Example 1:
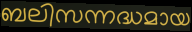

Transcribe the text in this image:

ബലിസന്നദ്ധമായ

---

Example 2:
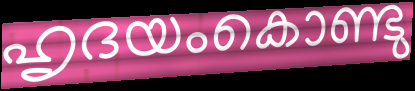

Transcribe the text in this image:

ഹൃദയംകൊണ്ടു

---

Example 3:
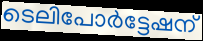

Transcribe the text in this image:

ടെലിപോർട്ടേഷന്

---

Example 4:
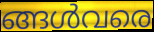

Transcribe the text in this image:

ങ്ങൾവരെ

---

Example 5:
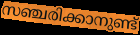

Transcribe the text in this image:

സഞ്ചരിക്കാനുണ്ട്